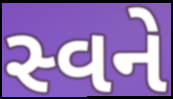
સ્વને